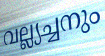
വല്ല്യച്ചനും